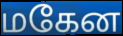
மகேன